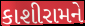
કાશીરામને